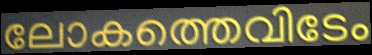
ലോകത്തെവിടേം